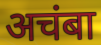
अचंबा